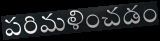
పరిమళించడం